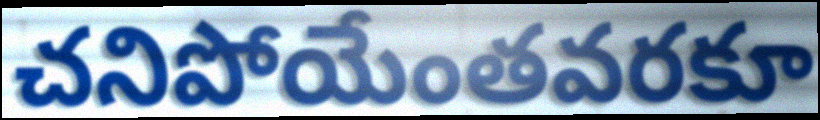
చనిపోయేంతవరకూ